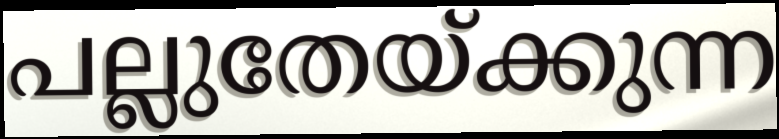
പല്ലുതേയ്ക്കുന്ന